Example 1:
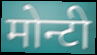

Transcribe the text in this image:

मोन्टी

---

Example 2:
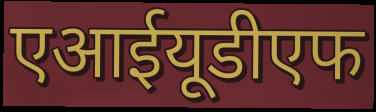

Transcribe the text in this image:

एआईयूडीएफ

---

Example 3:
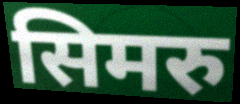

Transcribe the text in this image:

सिमरु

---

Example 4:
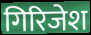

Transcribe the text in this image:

गिरिजेश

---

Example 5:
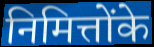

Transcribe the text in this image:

निमित्तोंके